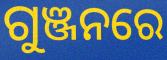
ଗୁଞ୍ଜନରେ